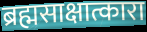
ब्रह्मसाक्षात्कारा